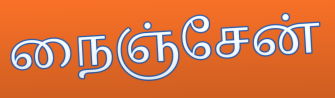
நைஞ்சேன்